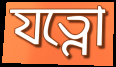
যত্নো